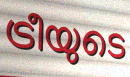
ട്രീയുടെ